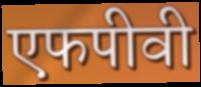
एफपीवी